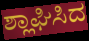
ಶ್ಲಾಘಿಸಿದ